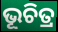
ଭୂଚିତ୍ର